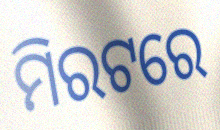
ମିରଟରେ